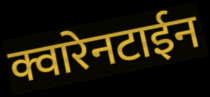
क्वारेनटाईन